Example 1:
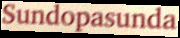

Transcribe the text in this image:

Sundopasunda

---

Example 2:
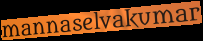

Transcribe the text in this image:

mannaselvakumar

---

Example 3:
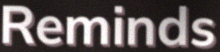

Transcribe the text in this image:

Reminds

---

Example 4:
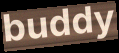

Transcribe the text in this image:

buddy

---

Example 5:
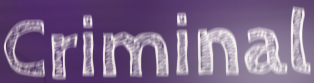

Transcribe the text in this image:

Criminal